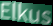
Elkus